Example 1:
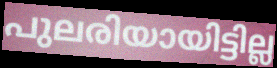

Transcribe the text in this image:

പുലരിയായിട്ടില്ല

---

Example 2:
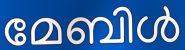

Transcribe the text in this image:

മേബിൾ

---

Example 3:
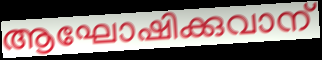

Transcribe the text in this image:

ആഘോഷിക്കുവാന്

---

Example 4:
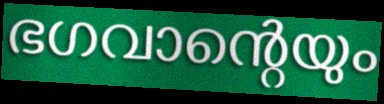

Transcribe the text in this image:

ഭഗവാന്റെയും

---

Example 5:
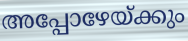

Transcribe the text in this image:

അപ്പോഴേയ്ക്കും